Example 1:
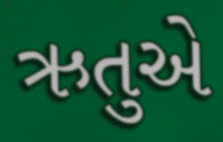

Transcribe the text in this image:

ઋતુએ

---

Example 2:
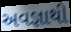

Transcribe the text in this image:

અવજ્ઞાથી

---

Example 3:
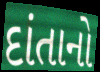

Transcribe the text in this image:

દાંતાનો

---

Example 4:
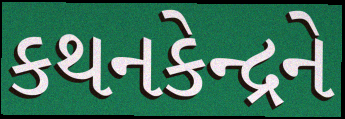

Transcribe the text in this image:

કથનકેન્દ્રને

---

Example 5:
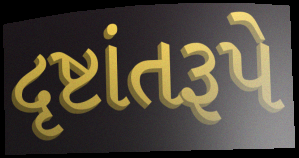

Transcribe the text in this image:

દૃષ્ટાંતરૂપે